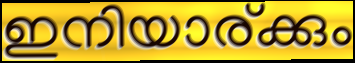
ഇനിയാര്ക്കും